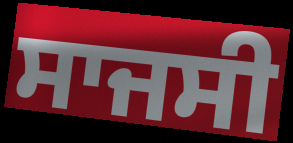
ਸਾਜਸੀ